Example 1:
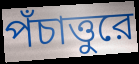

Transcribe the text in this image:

পঁচাত্তুরে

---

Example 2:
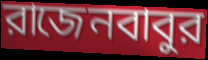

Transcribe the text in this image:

রাজেনবাবুর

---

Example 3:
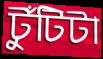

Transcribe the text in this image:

টুঁটিটা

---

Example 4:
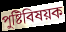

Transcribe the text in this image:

পুষ্টিবিষয়ক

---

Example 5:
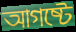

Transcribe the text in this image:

আগষ্টে